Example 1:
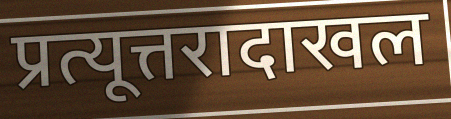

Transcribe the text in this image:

प्रत्यूत्तरादाखल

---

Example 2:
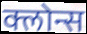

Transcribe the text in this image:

क्लोन्स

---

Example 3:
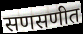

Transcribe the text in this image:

सणसणीत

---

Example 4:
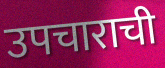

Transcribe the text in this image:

उपचाराची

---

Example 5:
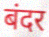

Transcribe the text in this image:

बंदर